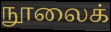
நூலைக்